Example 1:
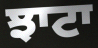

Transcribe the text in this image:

ਝਾਟਾ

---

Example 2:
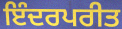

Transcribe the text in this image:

ਇੰਦਰਪਰੀਤ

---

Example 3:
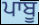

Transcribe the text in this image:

ਪਾਬੂ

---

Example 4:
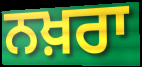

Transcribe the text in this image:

ਨਖ਼ਰਾ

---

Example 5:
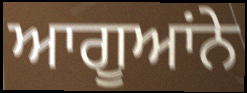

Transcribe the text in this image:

ਆਗੂਆਂਨੇ